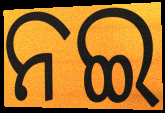
ନଇ